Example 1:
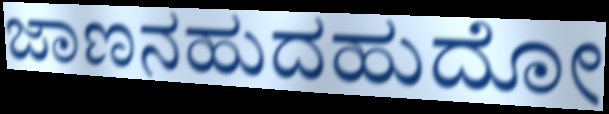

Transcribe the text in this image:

ಜಾಣನಹುದಹುದೋ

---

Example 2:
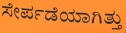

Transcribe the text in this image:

ಸೇರ್ಪಡೆಯಾಗಿತ್ತು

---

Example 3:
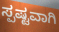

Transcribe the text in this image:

ಸ್ಪಷ್ಟವಾಗಿ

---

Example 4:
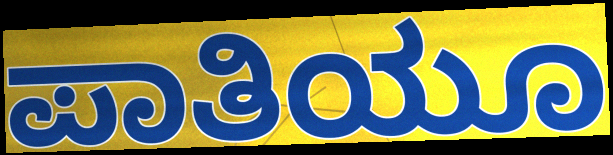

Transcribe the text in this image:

ಪಾತಿಯೂ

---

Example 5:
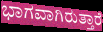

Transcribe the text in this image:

ಭಾಗವಾಗಿರುತ್ತಾರೆ